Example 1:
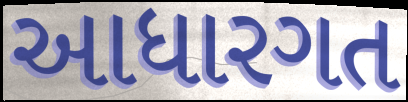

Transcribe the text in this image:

આધારગત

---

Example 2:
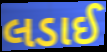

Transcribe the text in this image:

લડાઈ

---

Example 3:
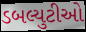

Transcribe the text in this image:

ડબલ્યુટીઓ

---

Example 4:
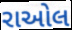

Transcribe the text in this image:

રાઓલ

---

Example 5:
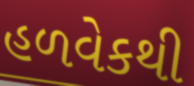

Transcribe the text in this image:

હળવેકથી